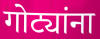
गोट्यांना